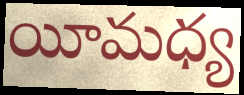
యీమధ్య